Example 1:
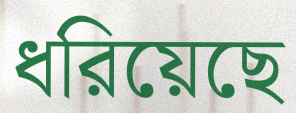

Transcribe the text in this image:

ধরিয়েছে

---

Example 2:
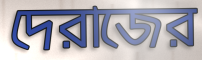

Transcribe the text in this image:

দেরাজের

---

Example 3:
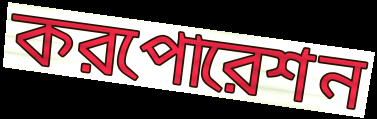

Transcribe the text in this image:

করপোরেশন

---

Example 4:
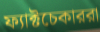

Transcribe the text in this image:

ফ্যাক্টচেকাররা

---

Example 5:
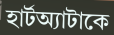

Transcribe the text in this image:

হার্টঅ্যাটাকে